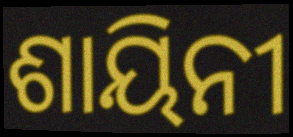
ଶାୟିନୀ